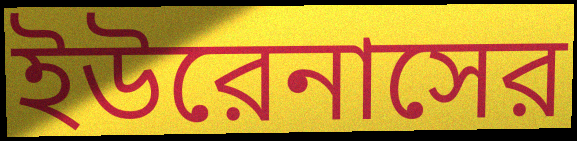
ইউরেনাসের